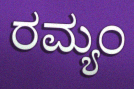
ರಮ್ಯಂ